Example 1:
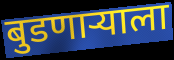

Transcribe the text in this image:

बुडणाऱ्याला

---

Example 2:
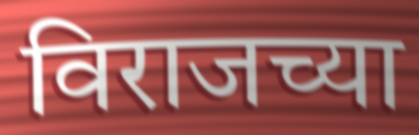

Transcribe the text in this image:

विराजच्या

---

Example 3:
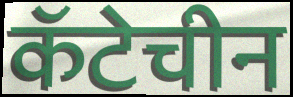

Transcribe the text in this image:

कॅटेचीन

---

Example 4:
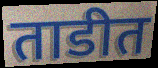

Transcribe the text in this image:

ताडीत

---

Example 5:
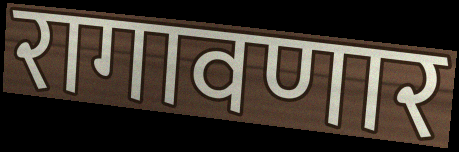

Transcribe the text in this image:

रागावणार